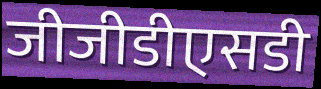
जीजीडीएसडी